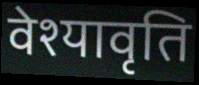
वेश्यावृति